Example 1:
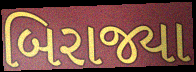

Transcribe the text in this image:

બિરાજ્યા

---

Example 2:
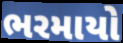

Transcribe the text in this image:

ભરમાયો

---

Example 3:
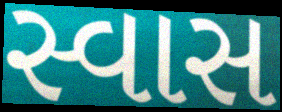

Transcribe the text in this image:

સ્વાસ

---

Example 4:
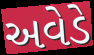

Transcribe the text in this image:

અવેડે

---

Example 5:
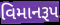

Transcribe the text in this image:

વિમાનરૂપ